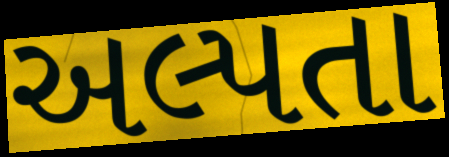
અલ્પતા